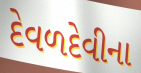
દેવળદેવીના